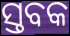
ସ୍ତବକ